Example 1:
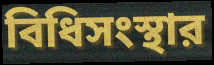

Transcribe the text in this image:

বিধিসংস্থার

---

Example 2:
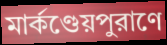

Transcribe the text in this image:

মার্কণ্ডেয়পুরাণে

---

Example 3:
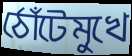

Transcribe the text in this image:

ঠোঁটেমুখে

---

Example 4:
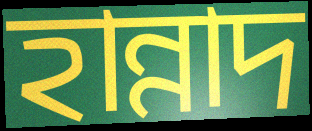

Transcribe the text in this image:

হান্নাদ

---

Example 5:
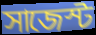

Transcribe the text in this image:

সাজেস্ট